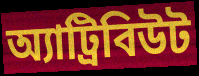
অ্যাট্রিবিউট